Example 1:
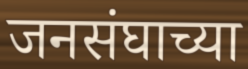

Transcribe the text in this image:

जनसंघाच्या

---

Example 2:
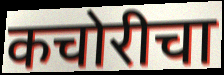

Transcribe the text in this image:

कचोरीचा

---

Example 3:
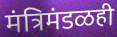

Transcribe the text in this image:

मंत्रिमंडळही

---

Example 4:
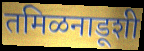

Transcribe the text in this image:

तमिळनाडूशी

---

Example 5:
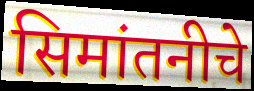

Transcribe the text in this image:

सिमांतनीचे